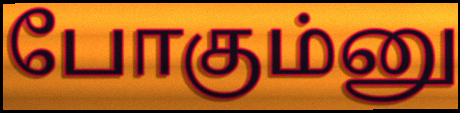
போகும்னு